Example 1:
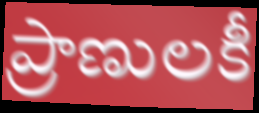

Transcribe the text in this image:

ప్రాణులకీ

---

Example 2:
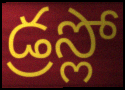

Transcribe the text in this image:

డ్రస్లో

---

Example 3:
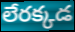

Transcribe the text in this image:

లేరక్కడ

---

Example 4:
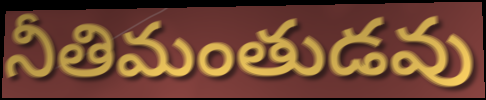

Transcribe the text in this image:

నీతిమంతుడవు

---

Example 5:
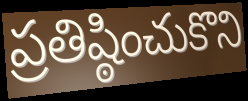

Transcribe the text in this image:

ప్రతిష్ఠించుకొని